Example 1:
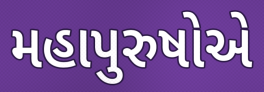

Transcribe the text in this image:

મહાપુરુષોએ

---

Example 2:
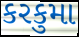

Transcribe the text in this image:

કરકુમા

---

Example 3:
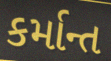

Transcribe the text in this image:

કર્માન્ત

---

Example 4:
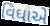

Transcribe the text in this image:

વિઘાએ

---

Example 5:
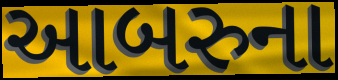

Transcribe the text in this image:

આબરુના